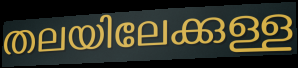
തലയിലേക്കുള്ള